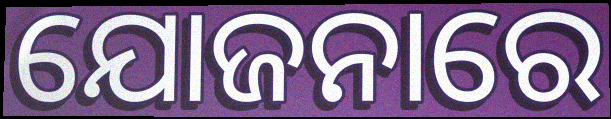
ଯୋଜନାରେ